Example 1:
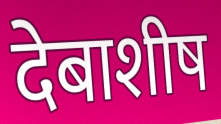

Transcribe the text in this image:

देबाशीष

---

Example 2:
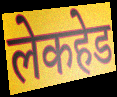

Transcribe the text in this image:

लेकहेड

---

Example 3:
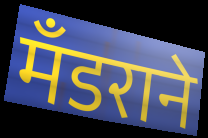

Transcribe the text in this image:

मँडराने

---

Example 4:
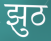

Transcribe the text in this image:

झुठ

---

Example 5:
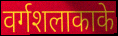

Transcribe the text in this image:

वर्गशलाकाके